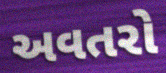
અવતરો